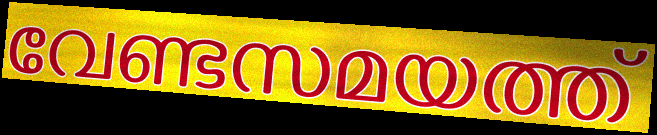
വേണ്ടസമയത്ത്